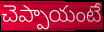
చెప్పాయంటే